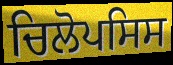
ਚਿਲੋਪਸਿਸ